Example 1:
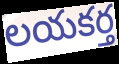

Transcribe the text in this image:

లయకర్త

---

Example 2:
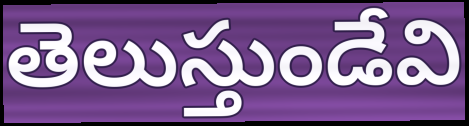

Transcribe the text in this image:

తెలుస్తుండేవి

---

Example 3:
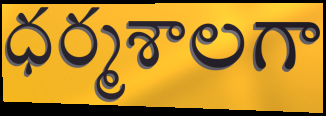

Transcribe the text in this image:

ధర్మశాలగా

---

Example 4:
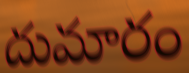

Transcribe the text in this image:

దుమారం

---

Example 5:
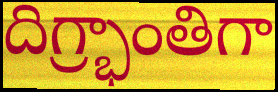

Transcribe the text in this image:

దిగ్ర్భాంతిగా